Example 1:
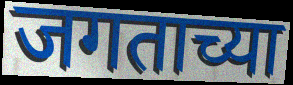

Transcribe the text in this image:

जगताच्या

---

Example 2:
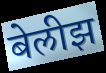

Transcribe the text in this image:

बेलीझ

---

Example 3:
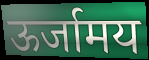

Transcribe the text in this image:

ऊर्जामय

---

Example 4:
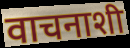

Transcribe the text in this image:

वाचनाशी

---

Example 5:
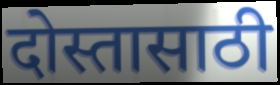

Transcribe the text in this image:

दोस्तासाठी